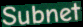
Subnet